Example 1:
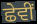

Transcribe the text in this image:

ਛੇਵੀਂ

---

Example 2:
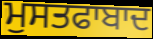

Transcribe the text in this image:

ਮੁਸਤਫਾਬਾਦ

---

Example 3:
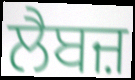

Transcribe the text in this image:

ਲੈਬਜ਼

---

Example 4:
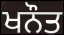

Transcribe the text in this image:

ਖਨੌਤ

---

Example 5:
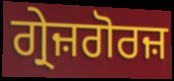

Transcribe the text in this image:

ਗ੍ਰੇਜ਼ਗੋਰਜ਼